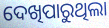
ଦେଖିପାରୁଥିଲା